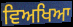
ਵਿਅਖਿਆ